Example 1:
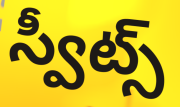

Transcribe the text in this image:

స్వీట్స్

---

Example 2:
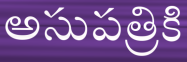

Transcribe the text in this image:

అసుపత్రికి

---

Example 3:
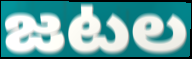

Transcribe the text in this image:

జటల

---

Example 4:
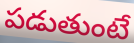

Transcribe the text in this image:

పడుతుంటే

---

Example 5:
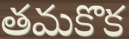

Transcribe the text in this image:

తమకొక